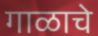
गाळाचे